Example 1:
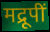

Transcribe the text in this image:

मद्रूपीं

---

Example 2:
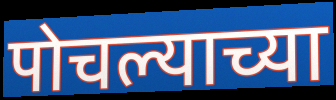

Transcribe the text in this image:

पोचल्याच्या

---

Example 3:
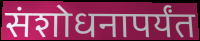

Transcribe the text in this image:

संशोधनापर्यंत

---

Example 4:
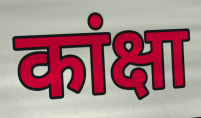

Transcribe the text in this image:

कांक्षा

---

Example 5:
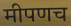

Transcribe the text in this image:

मीपणच